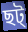
ছট্